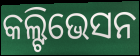
କଲ୍ଟିଭେସନ